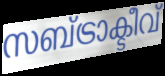
സബ്ട്രാക്ടീവ്